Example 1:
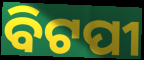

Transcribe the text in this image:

ବିଟପୀ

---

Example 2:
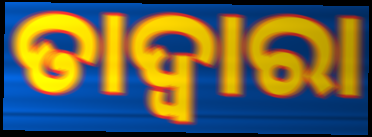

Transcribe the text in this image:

ତାଦ୍ଵାରା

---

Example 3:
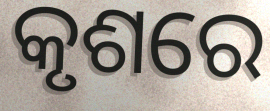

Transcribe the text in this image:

କୃଶରେ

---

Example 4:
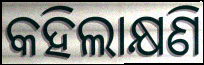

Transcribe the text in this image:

କହିଲାକ୍ଷଣି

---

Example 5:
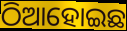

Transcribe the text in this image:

ଠିଆହୋଇଛ